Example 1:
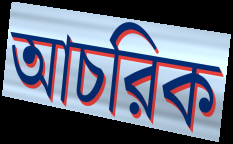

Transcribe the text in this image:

আচরিক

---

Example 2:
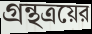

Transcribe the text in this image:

গ্রন্থত্রয়ের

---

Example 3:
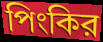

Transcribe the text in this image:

পিংকির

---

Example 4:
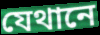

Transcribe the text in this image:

যেথানে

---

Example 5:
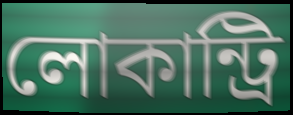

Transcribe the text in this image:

লোকান্ট্রি